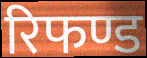
रिफण्ड